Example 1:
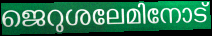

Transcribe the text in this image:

ജെറുശലേമിനോട്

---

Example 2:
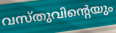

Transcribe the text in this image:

വസ്തുവിന്റെയും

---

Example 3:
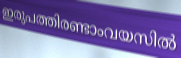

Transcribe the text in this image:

ഇരുപത്തിരണ്ടാംവയസിൽ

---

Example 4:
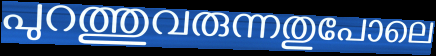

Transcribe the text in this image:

പുറത്തുവരുന്നതുപോലെ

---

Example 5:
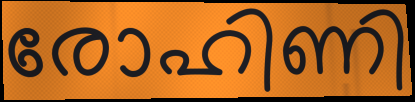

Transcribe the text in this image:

രോഹിണി